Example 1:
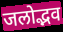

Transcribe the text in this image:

जलोद्भव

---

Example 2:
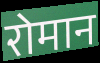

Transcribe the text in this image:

रोमान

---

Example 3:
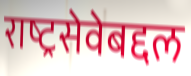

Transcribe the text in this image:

राष्ट्रसेवेबद्दल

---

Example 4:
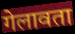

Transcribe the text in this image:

गेलावता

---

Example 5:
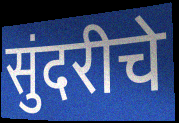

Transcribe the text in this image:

सुंदरीचे